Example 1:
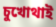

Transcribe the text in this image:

চুখোথাই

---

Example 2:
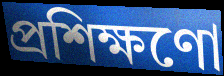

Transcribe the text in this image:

প্ৰশিক্ষণো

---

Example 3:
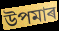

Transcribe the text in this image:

উপমাৰ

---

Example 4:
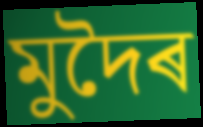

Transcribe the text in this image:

মুদৈৰ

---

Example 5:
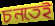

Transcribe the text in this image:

চনতেই